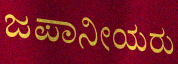
ಜಪಾನೀಯರು